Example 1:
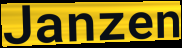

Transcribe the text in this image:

Janzen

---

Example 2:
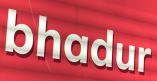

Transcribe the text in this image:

bhadur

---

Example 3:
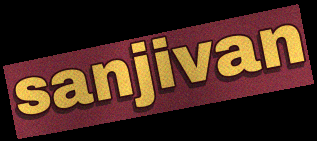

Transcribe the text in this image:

sanjivan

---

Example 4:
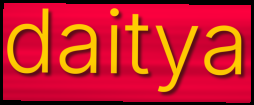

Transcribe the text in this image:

daitya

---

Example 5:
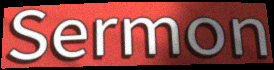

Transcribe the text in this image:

Sermon